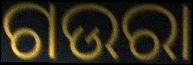
ଗଉରା